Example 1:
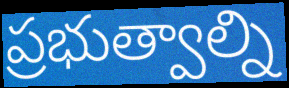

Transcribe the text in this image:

ప్రభుత్వాల్ని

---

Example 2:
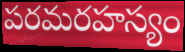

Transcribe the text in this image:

పరమరహస్యం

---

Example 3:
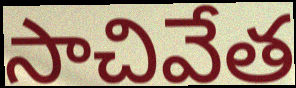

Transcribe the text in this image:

సాచివేత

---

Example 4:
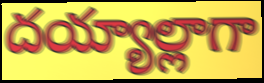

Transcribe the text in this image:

దయ్యాల్లాగా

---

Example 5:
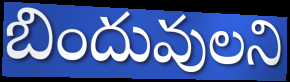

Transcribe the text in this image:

బిందువులని